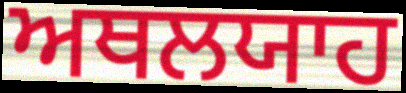
ਅਥਲਯਾਹ